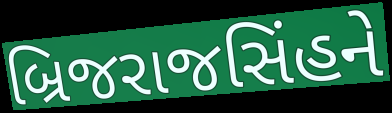
બ્રિજરાજસિંહને